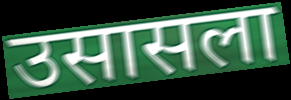
उसासला